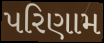
પરિણામ